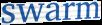
swarm